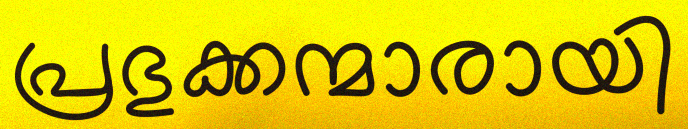
പ്രഭുക്കന്മാരായി